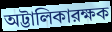
অট্টালিকারক্ষক